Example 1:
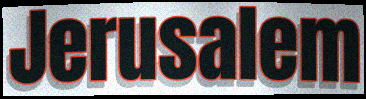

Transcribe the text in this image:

Jerusalem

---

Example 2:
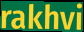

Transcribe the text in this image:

rakhvi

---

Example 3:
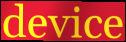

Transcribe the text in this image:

device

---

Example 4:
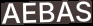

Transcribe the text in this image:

AEBAS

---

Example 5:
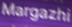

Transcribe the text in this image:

Margazhi